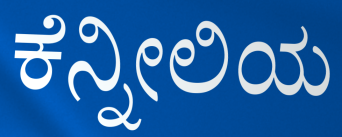
ಕೆನ್ನೀಲಿಯ